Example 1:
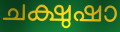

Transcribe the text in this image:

ചക്ഷുഷാ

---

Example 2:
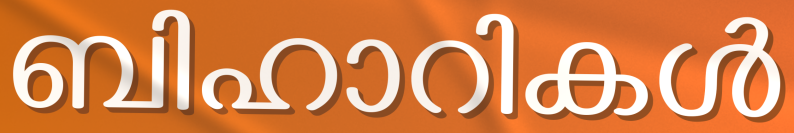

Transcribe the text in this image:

ബിഹാറികൾ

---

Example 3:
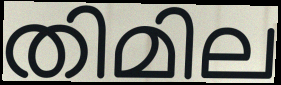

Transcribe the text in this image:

തിമില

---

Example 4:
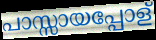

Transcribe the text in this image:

പാസ്സായപ്പോള്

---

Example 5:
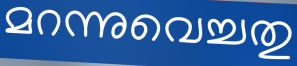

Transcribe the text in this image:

മറന്നുവെച്ചതു